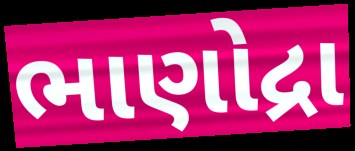
ભાણોદ્રા